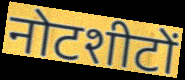
नोटशीटों